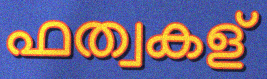
ഫത്വകള്